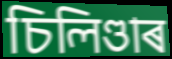
চিলিণ্ডাৰ